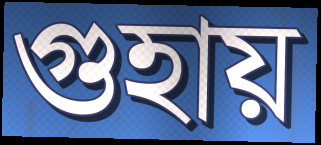
গুহায়